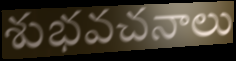
శుభవచనాలు